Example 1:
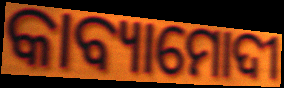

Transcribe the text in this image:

କାବ୍ୟାମୋଦୀ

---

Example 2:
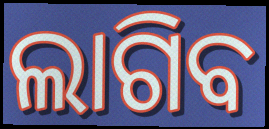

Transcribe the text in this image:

ଲାଗିବ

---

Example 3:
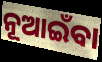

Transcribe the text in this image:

ନୂଆଇଁବା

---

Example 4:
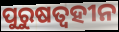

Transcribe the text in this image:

ପୁରୁଷତ୍ୱହୀନ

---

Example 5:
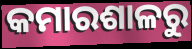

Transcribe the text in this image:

କମାରଶାଳରୁ